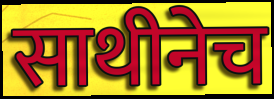
साथीनेच